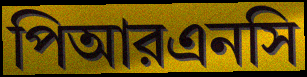
পিআরএনসি